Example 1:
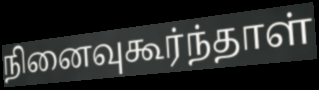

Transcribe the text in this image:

நினைவுகூர்ந்தாள்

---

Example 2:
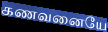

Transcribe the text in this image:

கணவனையே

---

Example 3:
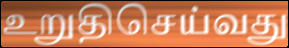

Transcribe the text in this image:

உறுதிசெய்வது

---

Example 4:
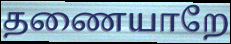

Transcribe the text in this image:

தணையாறே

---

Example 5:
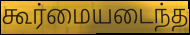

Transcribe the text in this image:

கூர்மையடைந்த